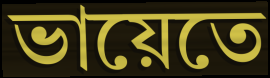
ভায়েতে